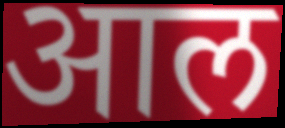
आल